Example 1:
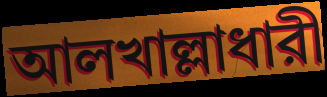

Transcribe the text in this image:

আলখাল্লাধারী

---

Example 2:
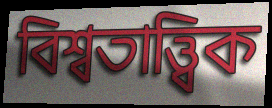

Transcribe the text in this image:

বিশ্বতাত্ত্বিক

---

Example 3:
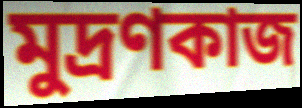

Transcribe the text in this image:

মুদ্রণকাজ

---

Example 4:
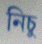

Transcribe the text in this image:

নিচু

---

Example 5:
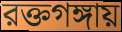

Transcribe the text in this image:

রক্তগঙ্গায়